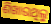
ଶିଖାଉଥିଲୁ